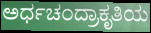
ಅರ್ಧಚಂದ್ರಾಕೃತಿಯ